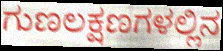
ಗುಣಲಕ್ಷಣಗಳಲ್ಲಿನ